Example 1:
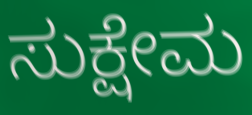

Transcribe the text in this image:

ಸುಕ್ಷೇಮ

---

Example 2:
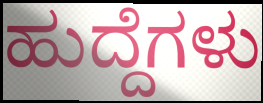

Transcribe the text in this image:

ಹುದ್ದೆಗಳು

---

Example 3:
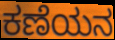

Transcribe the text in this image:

ಕಣೆಯನ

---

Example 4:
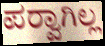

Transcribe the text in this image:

ಪರ‍್ವಾಗಿಲ್ಲ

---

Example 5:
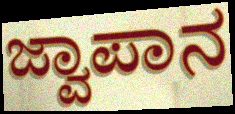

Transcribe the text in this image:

ಜ್ವಾಪಾನ